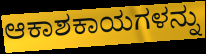
ಆಕಾಶಕಾಯಗಳನ್ನು